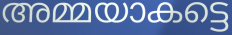
അമ്മയാകട്ടെ